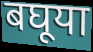
बघूया